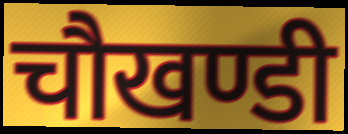
चौखण्डी